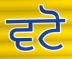
ਵਟੋ